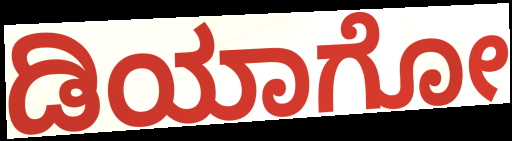
ಡಿಯಾಗೋ